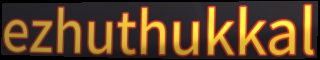
ezhuthukkal